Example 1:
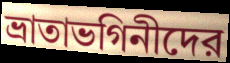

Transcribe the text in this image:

ভ্রাতাভগিনীদের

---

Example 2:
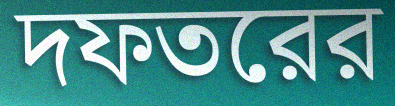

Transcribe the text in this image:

দফতরের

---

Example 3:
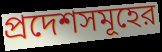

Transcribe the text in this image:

প্রদেশসমূহের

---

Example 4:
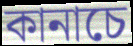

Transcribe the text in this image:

কানাচে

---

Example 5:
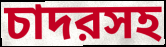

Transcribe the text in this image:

চাদরসহ